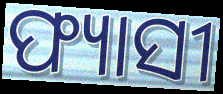
ଫ୍ୟାସୀ